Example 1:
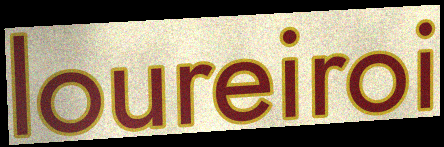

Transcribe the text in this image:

loureiroi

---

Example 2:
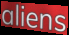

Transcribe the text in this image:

aliens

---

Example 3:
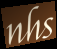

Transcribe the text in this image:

nhs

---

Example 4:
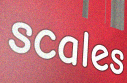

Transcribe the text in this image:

scales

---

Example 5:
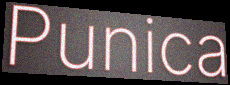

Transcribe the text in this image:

Punica